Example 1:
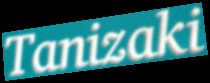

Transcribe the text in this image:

Tanizaki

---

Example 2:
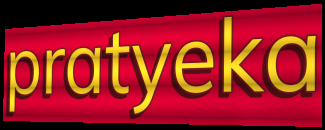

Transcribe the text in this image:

pratyeka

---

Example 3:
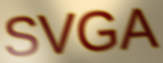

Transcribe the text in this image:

SVGA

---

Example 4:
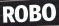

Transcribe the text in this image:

ROBO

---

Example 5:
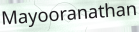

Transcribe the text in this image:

Mayooranathan